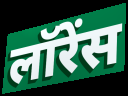
लॉरेंस